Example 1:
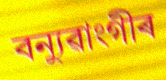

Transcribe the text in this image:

বন্যুৱাংগীৰ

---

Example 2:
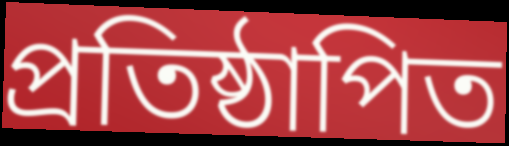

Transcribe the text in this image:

প্ৰতিষ্ঠাপিত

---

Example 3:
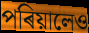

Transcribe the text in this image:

পৰিয়ালেও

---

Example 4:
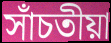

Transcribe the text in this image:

সাঁচতীয়া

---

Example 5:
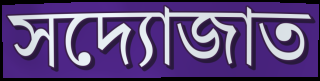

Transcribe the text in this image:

সদ্যোজাত